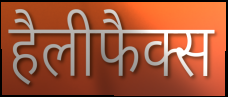
हैलीफैक्स